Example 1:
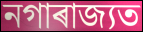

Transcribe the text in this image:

নগাৰাজ্যত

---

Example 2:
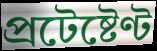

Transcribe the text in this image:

প্ৰটেষ্টেণ্ট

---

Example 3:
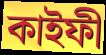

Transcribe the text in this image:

কাইফী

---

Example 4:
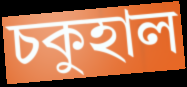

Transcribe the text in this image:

চকুহাল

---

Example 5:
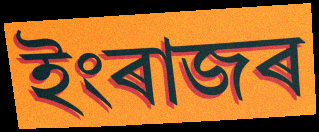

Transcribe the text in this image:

ইংৰাজৰ